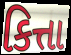
કિત્તા